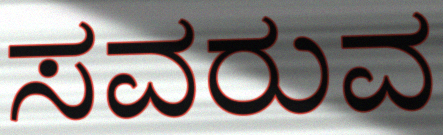
ಸವರುವ